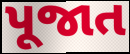
પૂજાત